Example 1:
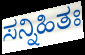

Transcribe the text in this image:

ಸನ್ನಿಹಿತಃ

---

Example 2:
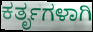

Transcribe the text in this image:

ಕರ್ತೃಗಳಾಗಿ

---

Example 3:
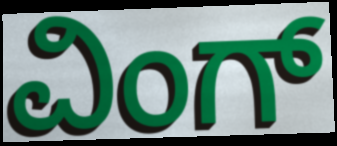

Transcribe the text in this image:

ವಿಂಗ್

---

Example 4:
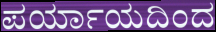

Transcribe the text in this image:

ಪರ್ಯಾಯದಿಂದ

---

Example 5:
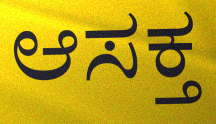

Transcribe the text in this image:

ಆಸಕ್ತ